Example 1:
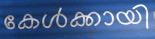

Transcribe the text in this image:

കേൾക്കായി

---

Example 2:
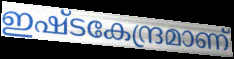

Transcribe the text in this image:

ഇഷ്ടകേന്ദ്രമാണ്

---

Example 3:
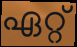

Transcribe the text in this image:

ഏറ്റ്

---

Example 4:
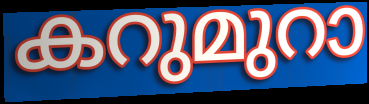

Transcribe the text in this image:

കറുമുറാ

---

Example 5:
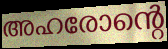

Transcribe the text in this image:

അഹരോന്റെ